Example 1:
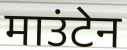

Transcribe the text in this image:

माउंटेन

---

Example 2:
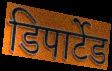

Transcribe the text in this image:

डिपार्टेड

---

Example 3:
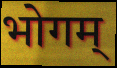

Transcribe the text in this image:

भोगम्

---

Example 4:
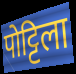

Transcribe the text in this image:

पोट्टिला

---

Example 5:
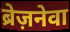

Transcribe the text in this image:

ब्रेज़नेवा